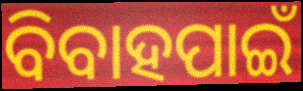
ବିବାହପାଇଁ